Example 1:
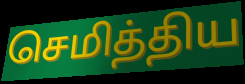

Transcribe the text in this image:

செமித்திய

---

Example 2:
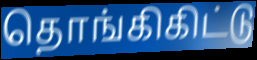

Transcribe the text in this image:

தொங்கிகிட்டு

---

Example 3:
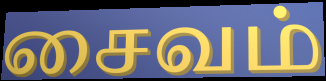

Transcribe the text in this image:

சைவம்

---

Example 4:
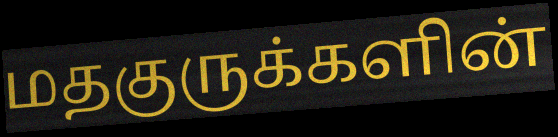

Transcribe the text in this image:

மதகுருக்களின்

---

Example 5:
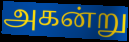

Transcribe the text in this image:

அகன்று